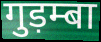
गुड़म्बा